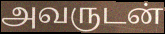
அவருடன்